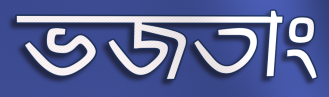
ভজতাং